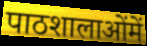
पाठशालाओंमें